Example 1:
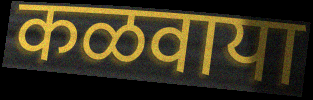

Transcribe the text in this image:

कळवाया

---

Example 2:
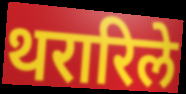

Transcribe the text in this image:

थरारिले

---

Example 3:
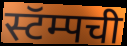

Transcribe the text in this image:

स्टॅम्पची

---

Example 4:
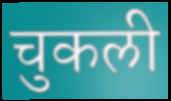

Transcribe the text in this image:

चुकली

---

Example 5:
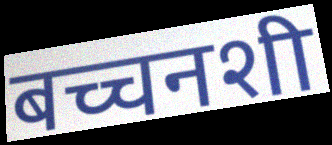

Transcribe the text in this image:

बच्चनशी